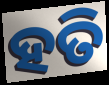
ହତି